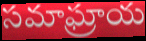
సమాఘ్రాయ